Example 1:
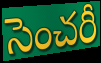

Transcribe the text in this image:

సెంచరీ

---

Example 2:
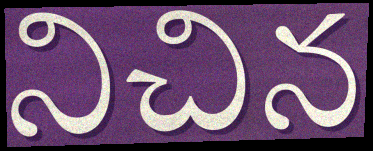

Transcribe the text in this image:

నిచిన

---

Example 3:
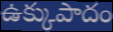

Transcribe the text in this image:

ఉక్కుపాదం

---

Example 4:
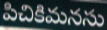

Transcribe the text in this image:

పిచికిమనసు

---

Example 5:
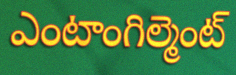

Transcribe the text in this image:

ఎంటాంగిల్మెంట్